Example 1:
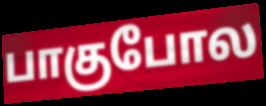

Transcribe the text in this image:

பாகுபோல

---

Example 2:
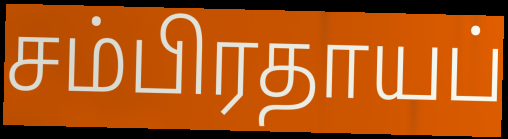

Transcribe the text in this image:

சம்பிரதாயப்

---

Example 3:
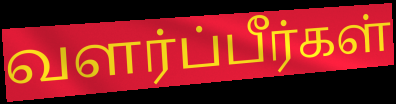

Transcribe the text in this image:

வளர்ப்பீர்கள்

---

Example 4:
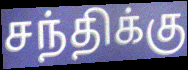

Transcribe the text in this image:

சந்திக்கு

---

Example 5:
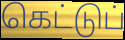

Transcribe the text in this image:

கெட்டுப்